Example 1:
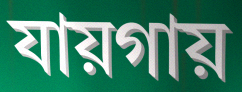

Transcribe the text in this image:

যায়গায়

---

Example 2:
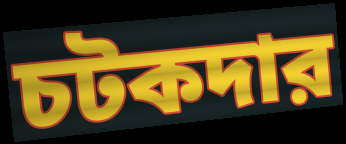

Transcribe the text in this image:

চটকদার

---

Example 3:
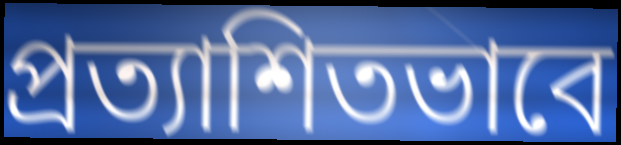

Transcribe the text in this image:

প্রত্যাশিতভাবে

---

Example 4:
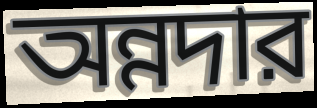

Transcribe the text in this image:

অন্নদার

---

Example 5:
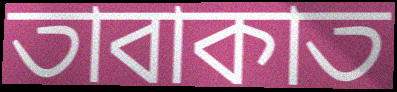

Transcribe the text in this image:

তাবাকাত